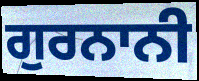
ਗੁਰਨਾਨੀ